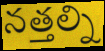
నత్తల్ని